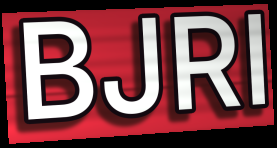
BJRI